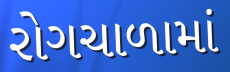
રોગચાળામાં